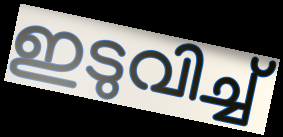
ഇടുവിച്ച്